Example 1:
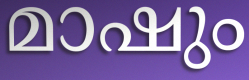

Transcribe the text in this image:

മാഷും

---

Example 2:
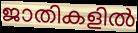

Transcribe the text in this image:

ജാതികളിൽ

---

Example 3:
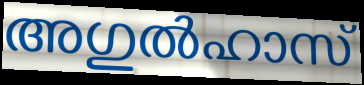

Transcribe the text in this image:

അഗുൽഹാസ്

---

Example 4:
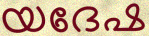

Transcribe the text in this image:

യദേഷ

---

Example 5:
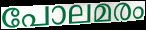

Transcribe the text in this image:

പോലമരം